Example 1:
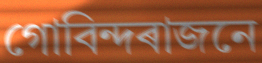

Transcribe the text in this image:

গোবিন্দৰাজনে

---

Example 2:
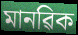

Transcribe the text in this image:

মানৱিক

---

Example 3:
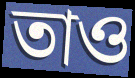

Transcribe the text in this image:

তাও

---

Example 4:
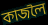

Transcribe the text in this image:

কাজলৈ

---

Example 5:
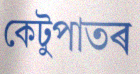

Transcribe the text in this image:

কেটুপাতৰ